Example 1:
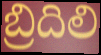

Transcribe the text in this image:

బ్రిదిలి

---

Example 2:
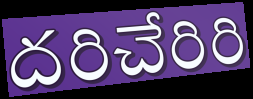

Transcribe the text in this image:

దరిచేరిరి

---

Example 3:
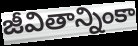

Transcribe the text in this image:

జీవితాన్నింకా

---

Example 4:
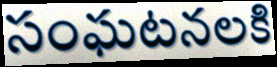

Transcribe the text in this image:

సంఘటనలకి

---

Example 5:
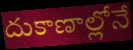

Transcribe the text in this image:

దుకాణాల్లోనే